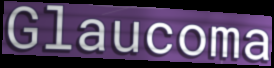
Glaucoma